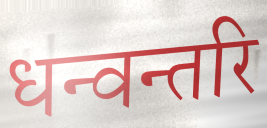
धन्वन्तरि